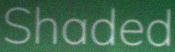
Shaded